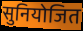
सुनियोजित